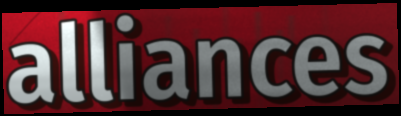
alliances